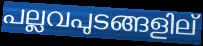
പല്ലവപുടങ്ങളില്